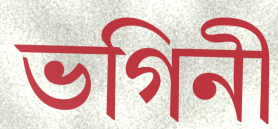
ভগিনী